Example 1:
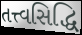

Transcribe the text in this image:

તત્ત્વસિદ્ધિ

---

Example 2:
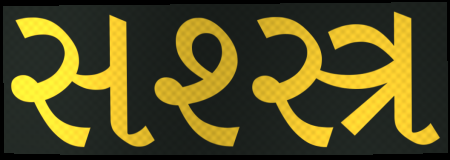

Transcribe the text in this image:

સશ્સ્ત્ર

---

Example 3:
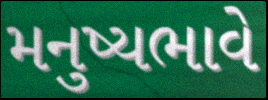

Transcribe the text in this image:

મનુષ્યભાવે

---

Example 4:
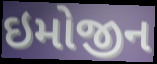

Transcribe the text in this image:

ઇમોજીન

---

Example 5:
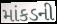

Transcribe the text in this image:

માંકડની